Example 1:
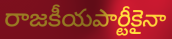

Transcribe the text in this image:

రాజకీయపార్టీకైనా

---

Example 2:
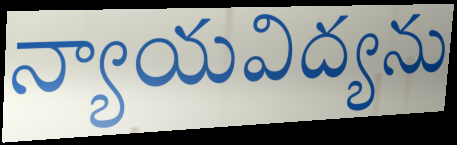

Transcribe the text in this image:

న్యాయవిద్యను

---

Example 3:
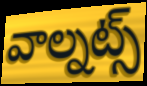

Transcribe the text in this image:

వాల్నట్స్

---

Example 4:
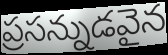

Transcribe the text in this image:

ప్రసన్నుడవైన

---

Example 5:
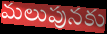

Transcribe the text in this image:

మలుపునకు